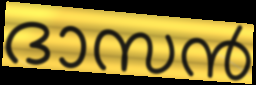
ദാസൻ